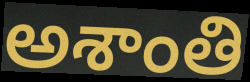
అశాంతి